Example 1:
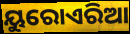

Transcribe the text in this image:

ୟୁରୋଏରିଆ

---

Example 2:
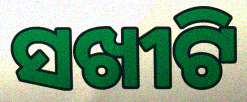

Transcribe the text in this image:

ସଖୀଟି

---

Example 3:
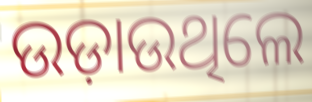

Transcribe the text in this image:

ଉଡ଼ାଉଥିଲେ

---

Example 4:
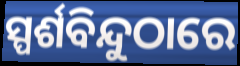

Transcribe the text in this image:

ସ୍ପର୍ଶବିନ୍ଦୁଠାରେ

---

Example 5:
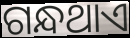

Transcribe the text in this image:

ଗନ୍ଧଥାଏ